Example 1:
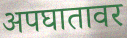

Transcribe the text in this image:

अपघातावर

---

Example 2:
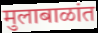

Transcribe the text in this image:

मुलाबाळांत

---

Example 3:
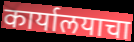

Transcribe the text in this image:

कार्यालयाचा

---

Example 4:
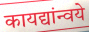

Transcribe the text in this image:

कायद्यांन्वये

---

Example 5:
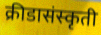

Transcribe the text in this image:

क्रीडासंस्कृती